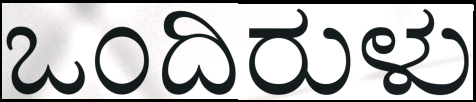
ಒಂದಿರುಳು